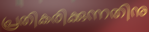
പ്രതികരിക്കുന്നതിനു